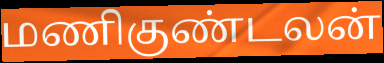
மணிகுண்டலன்